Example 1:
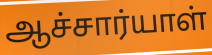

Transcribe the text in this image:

ஆச்சார்யாள்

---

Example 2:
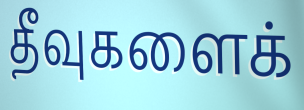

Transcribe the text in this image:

தீவுகளைக்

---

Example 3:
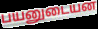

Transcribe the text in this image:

பயனுடையன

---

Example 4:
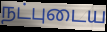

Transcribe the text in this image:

நட்புடைய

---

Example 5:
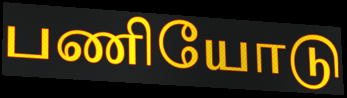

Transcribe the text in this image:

பணியோடு